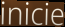
inicie